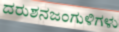
ದರುಶನಜಂಗುಳಿಗಳು